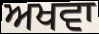
ਅਖਵਾ